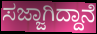
ಸಜ್ಜಾಗಿದ್ದಾನೆ